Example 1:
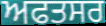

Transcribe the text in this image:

ਅਫਤਸਰ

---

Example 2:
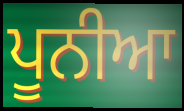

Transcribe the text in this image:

ਪੂਨੀਆ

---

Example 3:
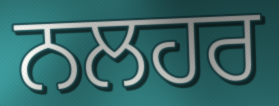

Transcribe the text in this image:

ਨਲਹਰ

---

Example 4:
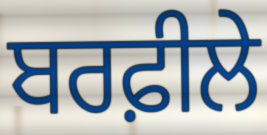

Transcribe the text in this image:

ਬਰਫ਼ੀਲੇ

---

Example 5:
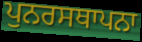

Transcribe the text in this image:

ਪੁਨਰਸਥਾਪਨਾ